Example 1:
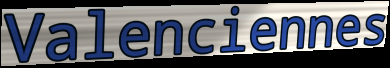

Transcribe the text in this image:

Valenciennes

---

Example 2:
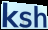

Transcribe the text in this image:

ksh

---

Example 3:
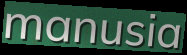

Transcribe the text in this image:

manusia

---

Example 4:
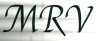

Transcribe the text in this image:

MRV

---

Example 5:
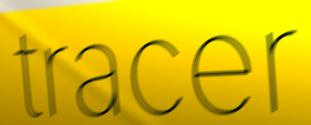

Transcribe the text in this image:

tracer